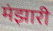
मंझारी